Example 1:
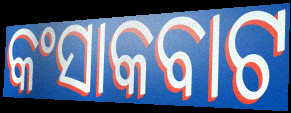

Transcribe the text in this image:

କଂସାକବାଟ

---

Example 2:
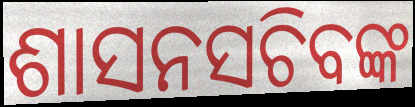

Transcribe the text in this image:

ଶାସନସଚିବଙ୍କ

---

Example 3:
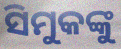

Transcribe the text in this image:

ସିମୁକଙ୍କୁ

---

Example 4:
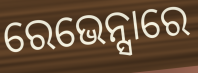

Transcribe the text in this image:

ରେଭେନ୍ସାରେ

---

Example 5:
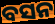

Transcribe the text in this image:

ବସନ